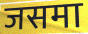
जसमा